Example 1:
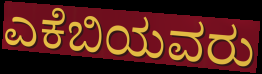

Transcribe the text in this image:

ಎಕೆಬಿಯವರು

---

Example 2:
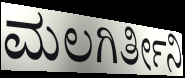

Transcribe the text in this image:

ಮಲಗಿರ್ತೀನಿ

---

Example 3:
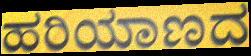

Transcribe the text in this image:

ಹರಿಯಾಣದ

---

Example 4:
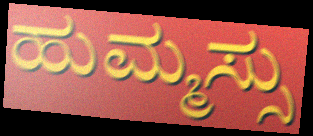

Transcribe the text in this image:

ಹುಮ್ಮಸ್ಸು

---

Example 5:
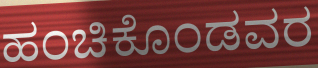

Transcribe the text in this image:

ಹಂಚಿಕೊಂಡವರ